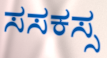
ಸಸಕಸ್ಸ